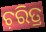
ଚ଼ରିତ୍ର